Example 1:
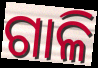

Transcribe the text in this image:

ଗାଳି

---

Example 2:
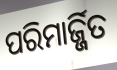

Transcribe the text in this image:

ପରିମାର୍ଜ୍ଜିତ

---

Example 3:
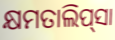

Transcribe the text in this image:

କ୍ଷମତାଲିପ୍‍ସା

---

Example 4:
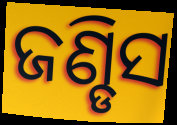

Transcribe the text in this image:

ଜଣ୍ଡିସ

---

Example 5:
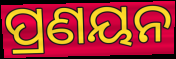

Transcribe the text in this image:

ପ୍ରଣୟନ